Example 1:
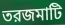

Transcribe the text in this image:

তরজমাটি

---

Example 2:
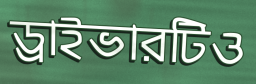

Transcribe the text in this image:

ড্রাইভারটিও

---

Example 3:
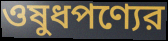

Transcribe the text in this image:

ওষুধপণ্যের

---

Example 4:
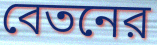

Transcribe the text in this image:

বেতনের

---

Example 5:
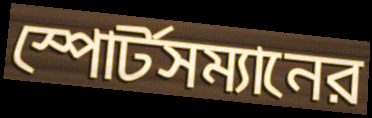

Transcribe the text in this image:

স্পোর্টসম্যানের